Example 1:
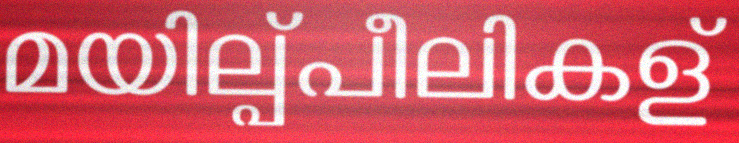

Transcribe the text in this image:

മയില്പ്പീലികള്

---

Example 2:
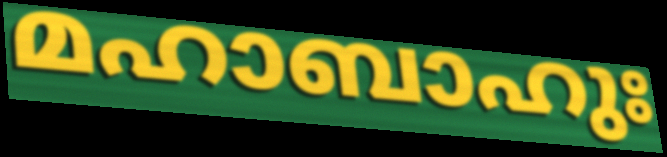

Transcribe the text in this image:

മഹാബാഹുഃ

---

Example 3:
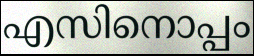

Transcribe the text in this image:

എസിനൊപ്പം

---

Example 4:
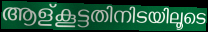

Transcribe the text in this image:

ആള്കൂട്ടതിനിടയിലൂടെ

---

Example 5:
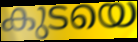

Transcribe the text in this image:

കുടയെ